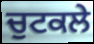
ਚੁਟਕਲੇ